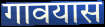
गावयास